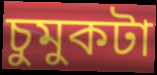
চুমুকটা